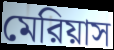
মেরিয়াস